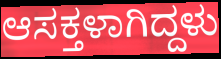
ಆಸಕ್ತಳಾಗಿದ್ದಳು